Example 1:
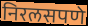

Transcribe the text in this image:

निरलसपणे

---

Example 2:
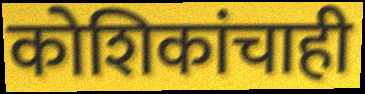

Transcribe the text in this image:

कोशिकांचाही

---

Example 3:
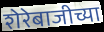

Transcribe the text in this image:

शेरेबाजीच्या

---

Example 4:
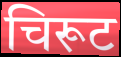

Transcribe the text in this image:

चिरूट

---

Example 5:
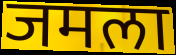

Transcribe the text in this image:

जमला